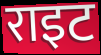
राइट